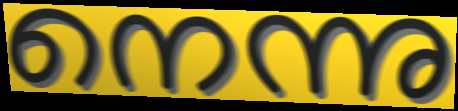
നെന്നു